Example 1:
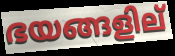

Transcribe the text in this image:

ഭയങ്ങളില്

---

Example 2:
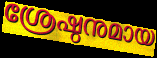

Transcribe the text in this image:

ശ്രേഷ്ഠനുമായ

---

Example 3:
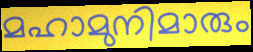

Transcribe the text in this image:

മഹാമുനിമാരും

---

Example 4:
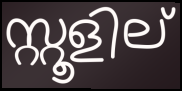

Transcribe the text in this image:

സ്റ്റൂളില്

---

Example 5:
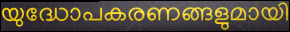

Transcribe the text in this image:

യുദ്ധോപകരണങ്ങളുമായി